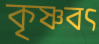
কৃষ্ণবৎ